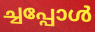
ച്ചപ്പോൾ